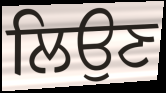
ਲਿਉਣ